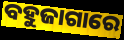
ବହୁଜାଗାରେ